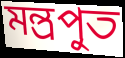
মন্ত্রপুত